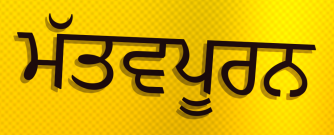
ਮੱਤਵਪੂਰਨ